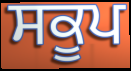
ਸਕੂਪ